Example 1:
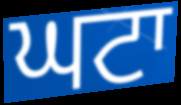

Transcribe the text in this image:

ਘਟਾ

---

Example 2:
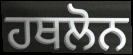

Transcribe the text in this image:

ਹਥਲੋਨ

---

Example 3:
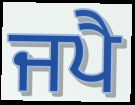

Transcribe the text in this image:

ਜਪੈ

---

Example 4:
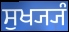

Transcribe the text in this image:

ਸੁਖ੍ਯ੍ਯੰ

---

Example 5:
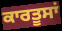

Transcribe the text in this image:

ਕਾਰਤੂਸਾਂ